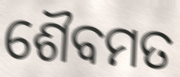
ଶୈବମତ